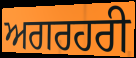
ਅਗਰਹਰੀ